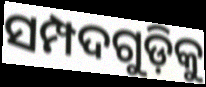
ସମ୍ପଦଗୁଡ଼ିକୁ